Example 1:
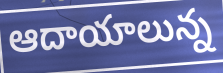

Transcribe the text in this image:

ఆదాయాలున్న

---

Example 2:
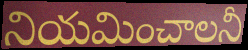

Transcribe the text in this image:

నియమించాలనీ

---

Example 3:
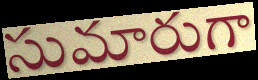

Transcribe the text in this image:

సుమారుగా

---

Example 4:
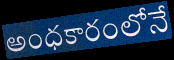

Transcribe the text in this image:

అంధకారంలోనే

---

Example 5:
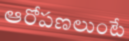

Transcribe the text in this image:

ఆరోపణలుంటే